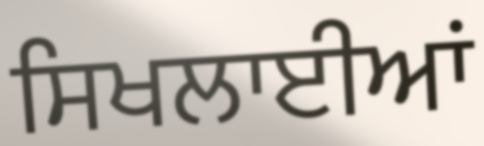
ਸਿਖਲਾਈਆਂ